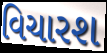
વિચારશ